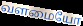
வளமையோ